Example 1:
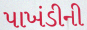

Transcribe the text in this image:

પાખંડીની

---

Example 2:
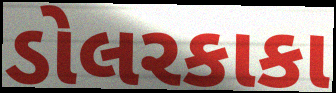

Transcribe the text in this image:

ડોલરકાકા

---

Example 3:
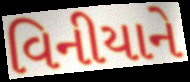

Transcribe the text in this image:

વિનીયાને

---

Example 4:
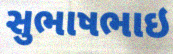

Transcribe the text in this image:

સુભાષભાઇ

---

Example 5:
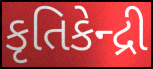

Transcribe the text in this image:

કૃતિકેન્દ્રી